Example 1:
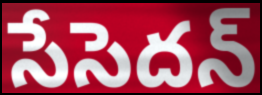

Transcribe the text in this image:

సేసెదన్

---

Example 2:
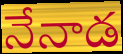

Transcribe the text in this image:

నేనాడ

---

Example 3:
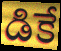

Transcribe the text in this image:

డికే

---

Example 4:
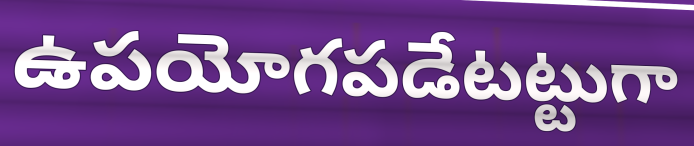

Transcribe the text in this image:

ఉపయోగపడేటట్టుగా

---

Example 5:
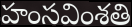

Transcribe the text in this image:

హంసవింశతి